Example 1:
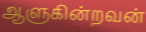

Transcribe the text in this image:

ஆளுகின்றவன்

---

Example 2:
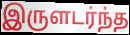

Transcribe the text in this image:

இருளடர்ந்த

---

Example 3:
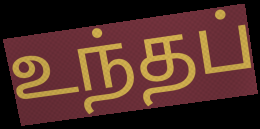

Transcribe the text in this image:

உந்தப்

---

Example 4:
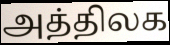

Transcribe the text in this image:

அத்திலக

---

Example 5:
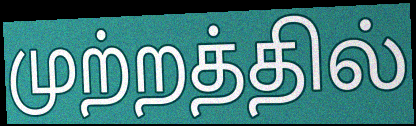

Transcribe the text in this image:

முற்றத்தில்